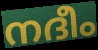
നദീം